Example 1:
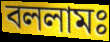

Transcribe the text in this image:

বললামঃ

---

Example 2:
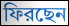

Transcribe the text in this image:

ফিরছেন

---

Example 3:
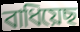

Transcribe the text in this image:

বাধিয়েছ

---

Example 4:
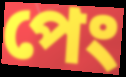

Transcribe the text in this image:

পেং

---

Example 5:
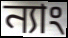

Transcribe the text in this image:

ন্যাং